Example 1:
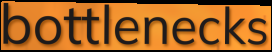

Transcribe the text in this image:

bottlenecks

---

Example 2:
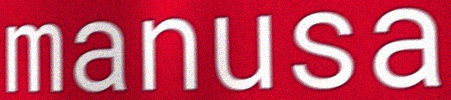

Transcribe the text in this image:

manusa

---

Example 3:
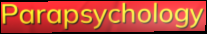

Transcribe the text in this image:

Parapsychology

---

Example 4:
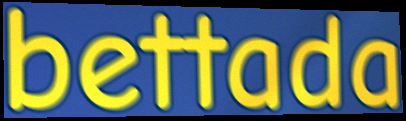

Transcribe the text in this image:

bettada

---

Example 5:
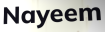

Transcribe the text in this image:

Nayeem